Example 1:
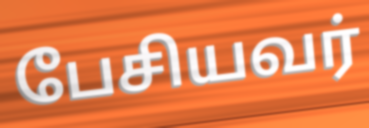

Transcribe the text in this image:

பேசியவர்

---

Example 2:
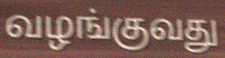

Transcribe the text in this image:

வழங்குவது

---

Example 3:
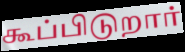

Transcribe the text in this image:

கூப்பிடுறார்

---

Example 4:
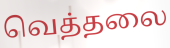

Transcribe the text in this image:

வெத்தலை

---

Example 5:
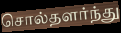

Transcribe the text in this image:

சொல்தளர்ந்து